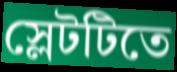
স্লেটটিতে